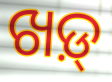
ଖଡ଼୍